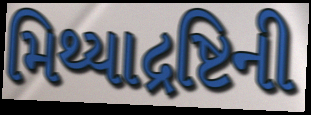
મિથ્યાદ્રષ્ટિની